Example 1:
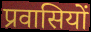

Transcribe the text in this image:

प्रवासियों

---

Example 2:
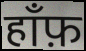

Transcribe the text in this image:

हाँफ़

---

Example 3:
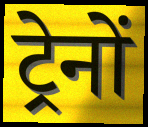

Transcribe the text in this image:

ट्रेनों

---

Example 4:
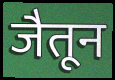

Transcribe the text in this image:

जैतून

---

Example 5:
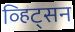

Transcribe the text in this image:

व्हिट्सन